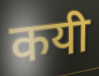
कयी